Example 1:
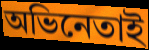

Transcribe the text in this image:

অভিনেতাই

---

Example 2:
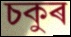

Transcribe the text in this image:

চকুৰ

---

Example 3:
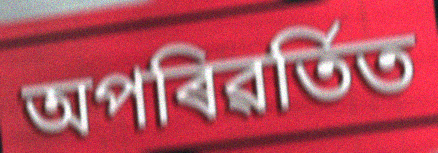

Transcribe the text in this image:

অপৰিৱৰ্তিত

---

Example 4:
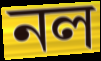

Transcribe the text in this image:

নল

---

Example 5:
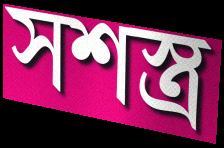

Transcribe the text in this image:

সশস্ত্ৰ